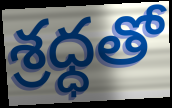
శ్రధ్ధతో